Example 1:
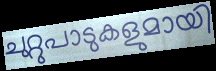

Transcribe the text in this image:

ചുറ്റുപാടുകളുമായി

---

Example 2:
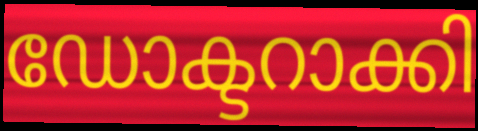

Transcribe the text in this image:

ഡോക്ടറാക്കി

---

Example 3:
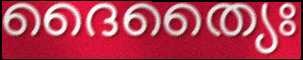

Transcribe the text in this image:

ദൈത്യൈഃ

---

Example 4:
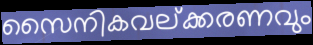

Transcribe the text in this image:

സൈനികവല്ക്കരണവും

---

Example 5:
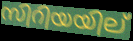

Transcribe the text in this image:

സിറിയയില്